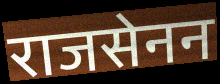
राजसेनन